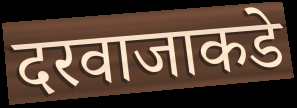
दरवाजाकडे